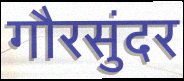
गौरसुंदर